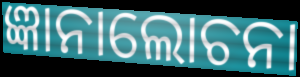
ଜ୍ଞାନାଲୋଚନା